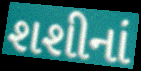
શશીનાં